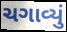
ચગાવ્યું